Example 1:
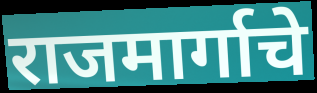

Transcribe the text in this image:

राजमार्गाचे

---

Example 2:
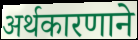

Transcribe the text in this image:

अर्थकारणाने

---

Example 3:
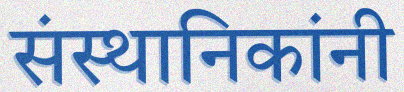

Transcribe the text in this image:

संस्थानिकांनी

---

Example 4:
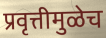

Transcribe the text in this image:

प्रवृत्तीमुळेच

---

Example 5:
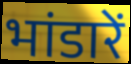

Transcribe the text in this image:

भांडारें